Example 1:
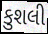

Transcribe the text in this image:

કુશલી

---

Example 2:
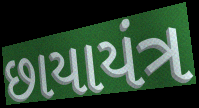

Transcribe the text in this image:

છાયાયંત્ર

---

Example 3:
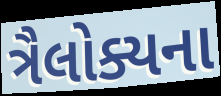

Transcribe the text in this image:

ત્રૈલોક્યના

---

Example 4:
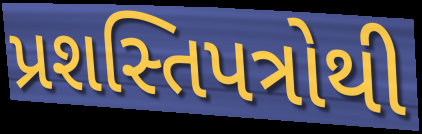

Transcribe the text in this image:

પ્રશસ્તિપત્રોથી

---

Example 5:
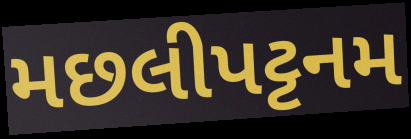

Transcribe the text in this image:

મછલીપટ્ટનમ